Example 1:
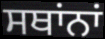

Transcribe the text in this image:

ਸਥਾਂਨਾਂ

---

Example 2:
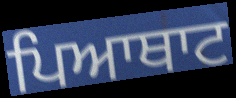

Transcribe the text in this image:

ਪਿਆਥਾਟ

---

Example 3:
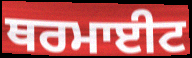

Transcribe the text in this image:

ਥਰਮਾਈਟ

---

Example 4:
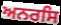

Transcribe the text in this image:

ਅਨਰਸਿ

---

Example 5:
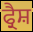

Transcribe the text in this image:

ਫ੍ਰੈਸ਼